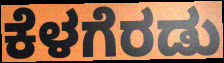
ಕೆಳಗೆರಡು